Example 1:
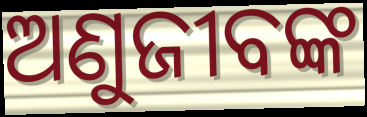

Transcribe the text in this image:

ଅଣୁଜୀବଙ୍କ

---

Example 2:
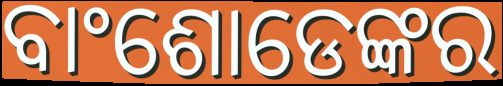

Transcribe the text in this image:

ବାଂଶୋଡେଙ୍କର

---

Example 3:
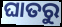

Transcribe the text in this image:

ଘାତରୁ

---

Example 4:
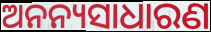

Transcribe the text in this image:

ଅନନ୍ୟସାଧାରଣ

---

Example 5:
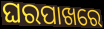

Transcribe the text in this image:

ଘରପାଖରେ